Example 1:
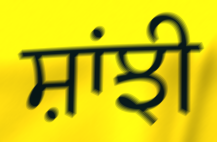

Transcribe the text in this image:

ਸ਼ਾਂਝੀ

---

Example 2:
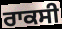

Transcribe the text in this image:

ਰਾਕਸੀ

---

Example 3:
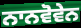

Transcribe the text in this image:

ਨਾਨਵੋਵੇਨ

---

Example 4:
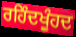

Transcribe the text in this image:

ਰਹਿੰਦਖੂੰਹਦ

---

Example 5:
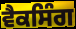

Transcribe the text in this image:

ਵੈਕਸਿੰਗ